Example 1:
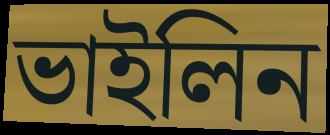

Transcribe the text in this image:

ভাইলিন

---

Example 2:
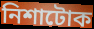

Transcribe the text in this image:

নিশাটোক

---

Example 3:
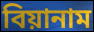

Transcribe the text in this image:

বিয়ানাম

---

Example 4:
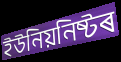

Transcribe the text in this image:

ইউনিয়নিষ্টৰ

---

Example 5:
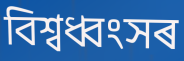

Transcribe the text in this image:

বিশ্বধ্বংসৰ